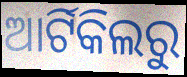
ଆର୍ଟିକିଲରୁ